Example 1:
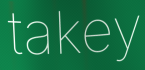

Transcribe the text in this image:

takey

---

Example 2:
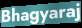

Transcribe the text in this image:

Bhagyaraj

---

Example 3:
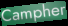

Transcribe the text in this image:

Campher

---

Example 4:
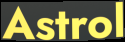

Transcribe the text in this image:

Astrol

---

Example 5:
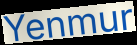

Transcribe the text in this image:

Yenmur